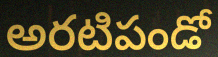
అరటిపండో